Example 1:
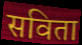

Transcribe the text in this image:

सविता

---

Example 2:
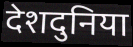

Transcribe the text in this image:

देशदुनिया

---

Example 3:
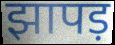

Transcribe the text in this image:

झापड़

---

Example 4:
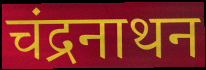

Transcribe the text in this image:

चंद्रनाथन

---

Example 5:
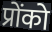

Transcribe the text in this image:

प्रोंको